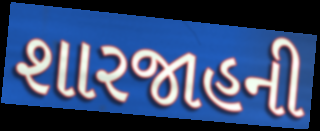
શારજાહની